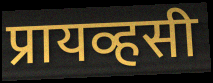
प्रायव्हसी